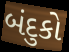
બંદુકો